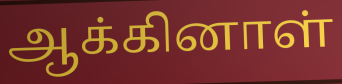
ஆக்கினாள்